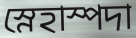
স্নেহাস্পদা